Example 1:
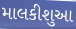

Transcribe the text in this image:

માલકીશુઆ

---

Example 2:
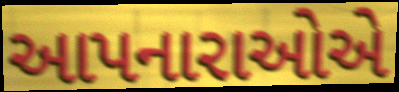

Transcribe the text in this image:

આપનારાઓએ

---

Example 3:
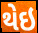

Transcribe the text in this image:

થેઇ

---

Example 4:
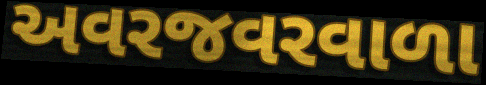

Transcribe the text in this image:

અવરજવરવાળા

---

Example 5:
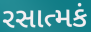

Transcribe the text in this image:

રસાત્મકં